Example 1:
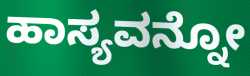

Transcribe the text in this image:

ಹಾಸ್ಯವನ್ನೋ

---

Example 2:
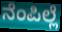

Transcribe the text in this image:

ನೆಂಪಿಲ್ಲೆ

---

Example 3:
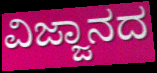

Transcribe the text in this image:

ವಿಜ್ಜಾನದ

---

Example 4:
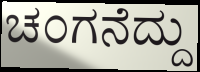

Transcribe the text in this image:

ಚಂಗನೆದ್ದು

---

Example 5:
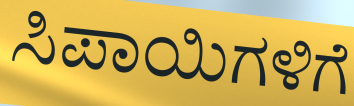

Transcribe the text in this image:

ಸಿಪಾಯಿಗಳಿಗೆ